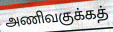
அணிவகுக்கத்